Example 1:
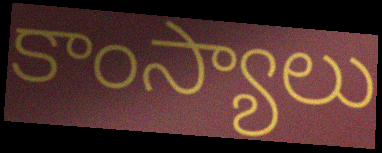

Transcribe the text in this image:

కాంస్యాలు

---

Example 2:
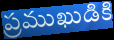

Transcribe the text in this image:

ప్రముఖుడికి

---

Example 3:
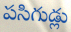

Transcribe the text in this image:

పసిగుడ్లు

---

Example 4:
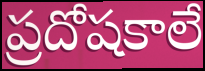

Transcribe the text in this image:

ప్రదోషకాలే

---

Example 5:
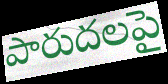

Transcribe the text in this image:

పారుదలపై